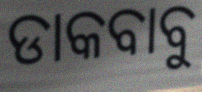
ଡାକବାବୁ